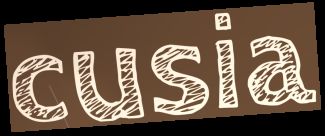
cusia